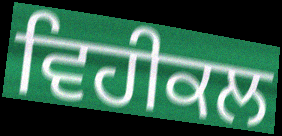
ਵਿਹੀਕਲ